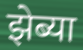
झेब्या